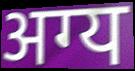
अग्य